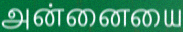
அன்னையை